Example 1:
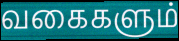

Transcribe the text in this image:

வகைகளும்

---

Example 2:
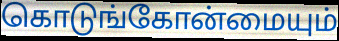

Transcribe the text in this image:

கொடுங்கோன்மையும்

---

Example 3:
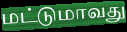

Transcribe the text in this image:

மட்டுமாவது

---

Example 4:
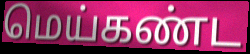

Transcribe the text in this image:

மெய்கண்ட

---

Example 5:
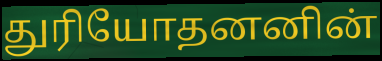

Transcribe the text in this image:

துரியோதனனின்